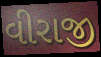
વીરાજી